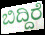
ಬಿದ್ದಿರೆ